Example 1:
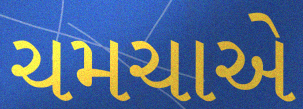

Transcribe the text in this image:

ચમચાએ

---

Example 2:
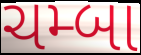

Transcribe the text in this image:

ચમ્બા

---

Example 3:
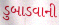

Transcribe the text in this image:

ડુબાડવાની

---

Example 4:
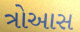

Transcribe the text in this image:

ત્રોઆસ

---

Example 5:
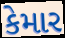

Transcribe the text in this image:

કેમાર